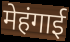
मेहंगाई